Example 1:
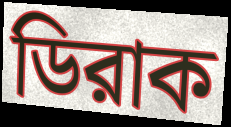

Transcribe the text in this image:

ডিরাক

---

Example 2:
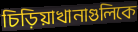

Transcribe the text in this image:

চিড়িয়াখানাগুলিকে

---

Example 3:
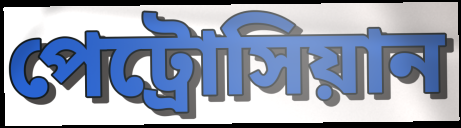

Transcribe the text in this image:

পেট্রোসিয়ান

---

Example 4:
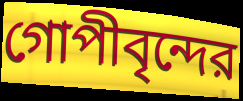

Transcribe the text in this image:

গোপীবৃন্দের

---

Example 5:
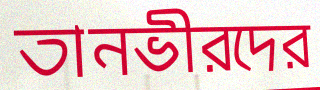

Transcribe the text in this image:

তানভীরদের